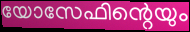
യോസേഫിന്റെയും